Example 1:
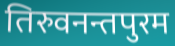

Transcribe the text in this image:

तिरुवनन्तपुरम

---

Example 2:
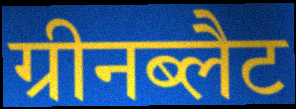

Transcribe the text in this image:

ग्रीनब्लैट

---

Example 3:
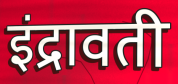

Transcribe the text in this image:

इंद्रावती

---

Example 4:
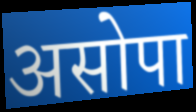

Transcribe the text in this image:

असोपा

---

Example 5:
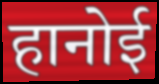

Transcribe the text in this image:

हानोई